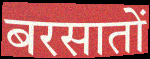
बरसातों